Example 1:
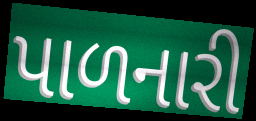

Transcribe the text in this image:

પાળનારી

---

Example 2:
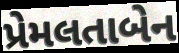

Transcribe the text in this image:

પ્રેમલતાબેન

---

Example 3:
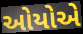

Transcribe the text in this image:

ઓયોએ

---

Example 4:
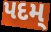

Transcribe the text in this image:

પદમ્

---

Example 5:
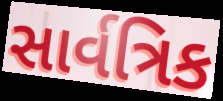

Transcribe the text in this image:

સાર્વત્રિક